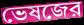
ভেষজের